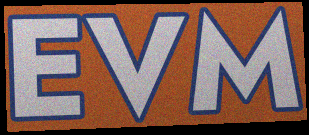
EVM